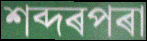
শব্দৰপৰা